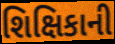
શિક્ષિકાની